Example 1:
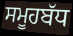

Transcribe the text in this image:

ਸਮੂਹਬੱਧ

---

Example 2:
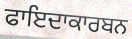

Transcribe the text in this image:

ਫਾਇਦਾਕਾਰਬਨ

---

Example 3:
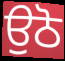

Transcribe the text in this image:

ਉਠੋ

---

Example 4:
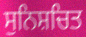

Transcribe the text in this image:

ਸੁਨਿਸ਼ਚਿਤ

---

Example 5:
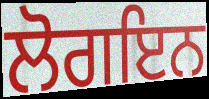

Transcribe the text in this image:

ਲੋਗਇਨ